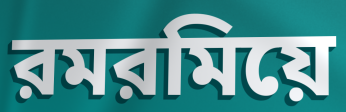
রমরমিয়ে